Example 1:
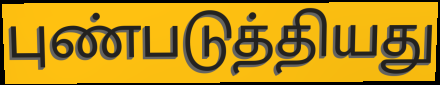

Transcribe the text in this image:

புண்படுத்தியது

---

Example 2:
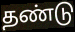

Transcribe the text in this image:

தண்டு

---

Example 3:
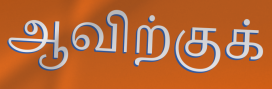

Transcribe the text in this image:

ஆவிற்குக்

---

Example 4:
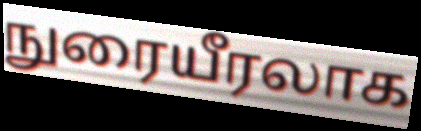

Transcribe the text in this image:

நுரையீரலாக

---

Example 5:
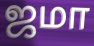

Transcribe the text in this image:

ஜமா